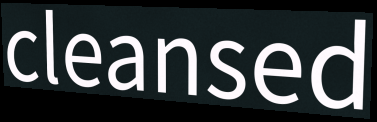
cleansed